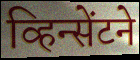
व्हिन्सेंटने